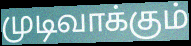
முடிவாக்கும்